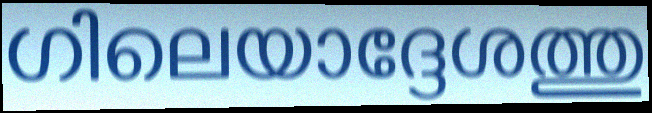
ഗിലെയാദ്ദേശത്തു